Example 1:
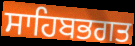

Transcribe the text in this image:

ਸਾਹਿਬਭਗਤ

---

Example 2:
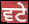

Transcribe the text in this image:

ਵਟੇ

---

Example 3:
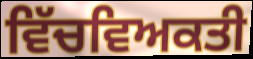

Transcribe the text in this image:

ਵਿੱਚਵਿਅਕਤੀ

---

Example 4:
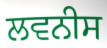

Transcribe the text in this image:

ਲਵਨੀਸ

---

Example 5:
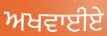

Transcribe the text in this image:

ਅਖਵਾਈਏ